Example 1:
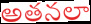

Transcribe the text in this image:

అతనలా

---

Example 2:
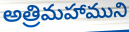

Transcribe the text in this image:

అత్రిమహాముని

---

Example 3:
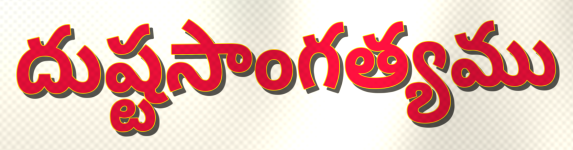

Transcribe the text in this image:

దుష్టసాంగత్యము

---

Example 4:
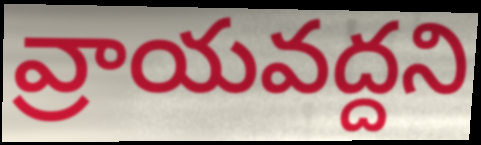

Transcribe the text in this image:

వ్రాయవద్దని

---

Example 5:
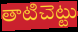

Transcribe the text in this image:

తాటిచెట్టు